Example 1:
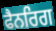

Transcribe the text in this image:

ਫੈਨਰਿਗ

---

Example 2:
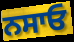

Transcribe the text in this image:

ਨਸਾਓ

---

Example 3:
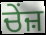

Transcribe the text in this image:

ਚੇਂਜ਼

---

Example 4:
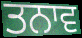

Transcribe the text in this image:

ਤਨਾਵ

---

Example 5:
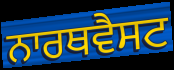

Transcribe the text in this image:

ਨਾਰਥਵੈਸਟ